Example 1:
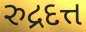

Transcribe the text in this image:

રુદ્રદત્ત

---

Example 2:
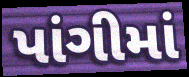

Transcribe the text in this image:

પાંગીમાં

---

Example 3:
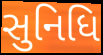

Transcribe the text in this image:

સુનિધિ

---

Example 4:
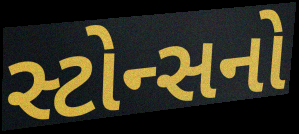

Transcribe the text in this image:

સ્ટોન્સનો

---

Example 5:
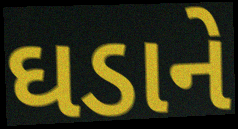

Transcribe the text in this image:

ઘડાને